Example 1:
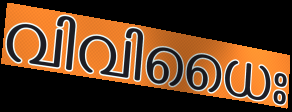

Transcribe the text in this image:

വിവിധൈഃ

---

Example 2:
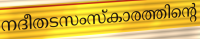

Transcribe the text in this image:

നദീതടസംസ്കാരത്തിന്റെ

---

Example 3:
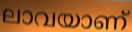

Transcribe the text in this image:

ലാവയാണ്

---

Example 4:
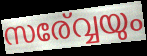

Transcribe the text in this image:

സര്വ്വേയും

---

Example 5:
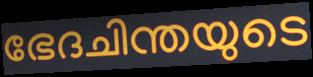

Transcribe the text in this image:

ഭേദചിന്തയുടെ